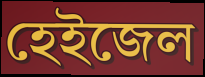
হেইজেল